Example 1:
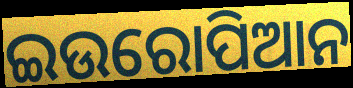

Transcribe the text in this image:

ଇଉରୋପିଆନ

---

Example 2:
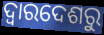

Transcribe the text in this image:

ଦ୍ଵାରଦେଶରୁ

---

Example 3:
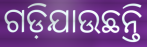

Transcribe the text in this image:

ଗଡ଼ିଯାଉଛନ୍ତି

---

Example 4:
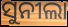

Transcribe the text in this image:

ସୁନୀଲା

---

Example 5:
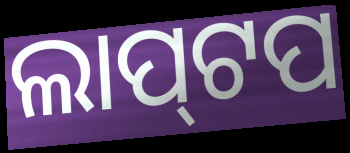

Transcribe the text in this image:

ଲାପ୍‌ଟପ